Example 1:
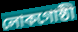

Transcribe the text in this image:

লোকগোষ্ঠী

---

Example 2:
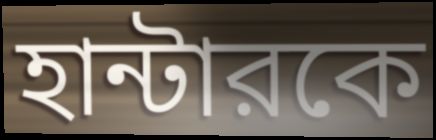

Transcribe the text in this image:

হান্টারকে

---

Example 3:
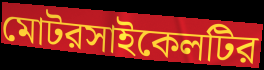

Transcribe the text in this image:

মোটরসাইকেলটির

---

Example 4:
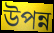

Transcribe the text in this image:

উপন্ন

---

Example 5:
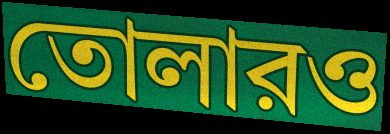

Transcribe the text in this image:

তোলারও